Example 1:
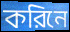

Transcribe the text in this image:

করিনে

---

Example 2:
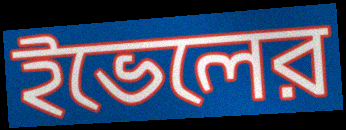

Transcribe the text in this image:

ইভেলের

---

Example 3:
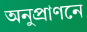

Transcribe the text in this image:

অনুপ্রাণনে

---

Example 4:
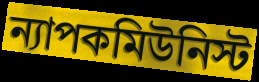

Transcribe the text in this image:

ন্যাপকমিউনিস্ট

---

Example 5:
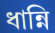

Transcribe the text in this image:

ধান্নি